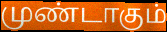
முண்டாகும்